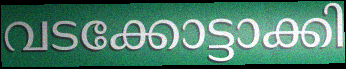
വടക്കോട്ടാക്കി